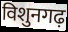
विशुनगढ़